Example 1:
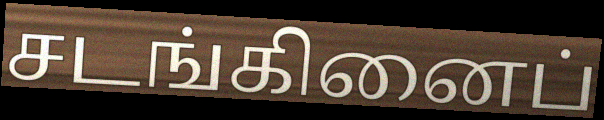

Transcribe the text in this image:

சடங்கினைப்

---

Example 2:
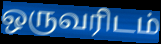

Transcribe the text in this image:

ஒருவரிடம்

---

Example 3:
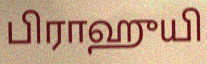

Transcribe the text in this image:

பிராஹுயி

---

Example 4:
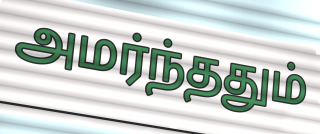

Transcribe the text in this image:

அமர்ந்ததும்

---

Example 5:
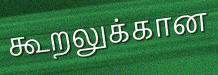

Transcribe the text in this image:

கூறலுக்கான